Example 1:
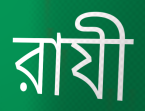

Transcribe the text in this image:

রাযী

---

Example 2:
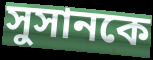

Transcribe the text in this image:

সুসানকে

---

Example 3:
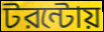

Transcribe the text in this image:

টরন্টোয়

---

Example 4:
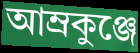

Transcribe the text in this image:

আম্রকুঞ্জে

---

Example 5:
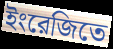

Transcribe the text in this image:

ইংরেজিতে